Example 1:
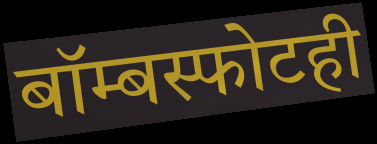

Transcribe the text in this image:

बॉम्बस्फोटही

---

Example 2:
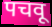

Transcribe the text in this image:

पचवू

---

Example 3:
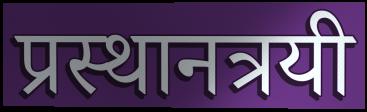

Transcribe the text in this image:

प्रस्थानत्रयी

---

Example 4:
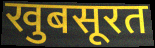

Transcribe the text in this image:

खुबसूरत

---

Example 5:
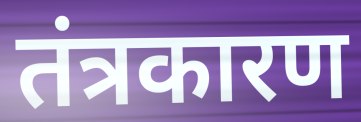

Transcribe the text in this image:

तंत्रकारण